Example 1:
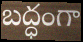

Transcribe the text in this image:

బద్ధంగా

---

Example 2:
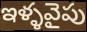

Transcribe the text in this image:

ఇళ్ళవైపు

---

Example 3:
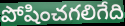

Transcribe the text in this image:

పోషించగలిగేది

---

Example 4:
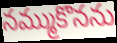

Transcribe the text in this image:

నమ్ముకొనను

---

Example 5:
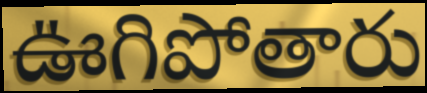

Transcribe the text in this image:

ఊగిపోతారు